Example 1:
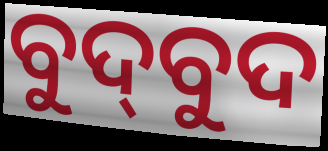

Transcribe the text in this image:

ବୁଦ୍‍ବୁଦ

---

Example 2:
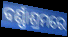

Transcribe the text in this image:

ବର୍ଣ୍ଣାଶ୍ରମରେ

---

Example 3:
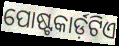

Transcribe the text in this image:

ପୋଷ୍ଟକାର୍ଡ଼ଟିଏ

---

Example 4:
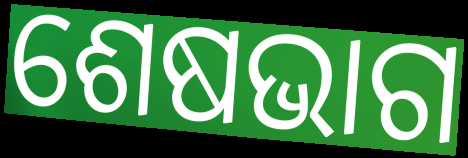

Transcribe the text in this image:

ଶେଷଭାଗ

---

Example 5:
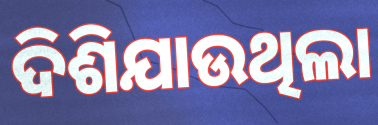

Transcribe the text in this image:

ଦିଶିଯାଉଥିଲା